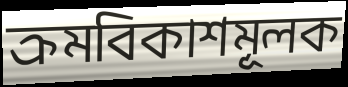
ক্রমবিকাশমূলক